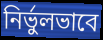
নির্ভুলভাবে